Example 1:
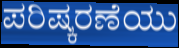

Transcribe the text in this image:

ಪರಿಷ್ಕರಣೆಯು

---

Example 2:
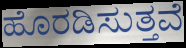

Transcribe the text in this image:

ಹೊರಡಿಸುತ್ತವೆ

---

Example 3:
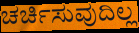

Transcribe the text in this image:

ಚರ್ಚಿಸುವುದಿಲ್ಲ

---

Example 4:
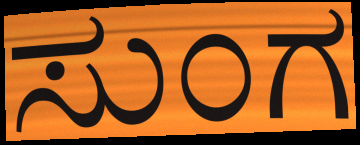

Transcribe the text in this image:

ಸುಂಗ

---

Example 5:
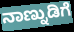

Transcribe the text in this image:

ನಾಣ್ನುಡಿಗೆ